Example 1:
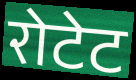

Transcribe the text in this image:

रोटेट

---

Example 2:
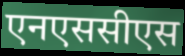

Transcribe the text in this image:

एनएससीएस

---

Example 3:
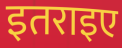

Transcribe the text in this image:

इतराइए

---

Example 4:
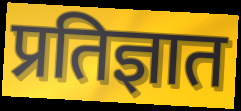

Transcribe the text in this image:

प्रतिज्ञात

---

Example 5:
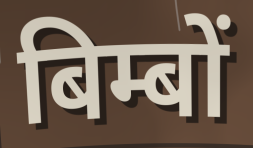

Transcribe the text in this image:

बिम्बों